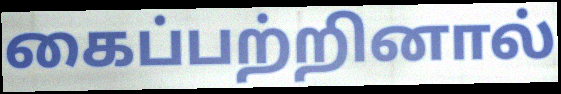
கைப்பற்றினால்